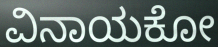
ವಿನಾಯಕೋ